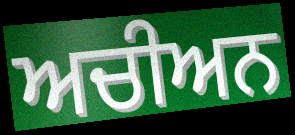
ਅਚੀਅਨ